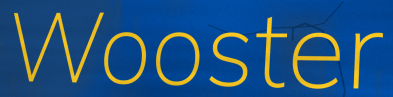
Wooster